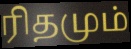
ரிதமும்